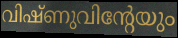
വിഷ്ണുവിന്റേയും